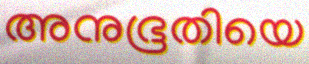
അനുഭൂതിയെ